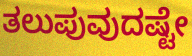
ತಲುಪುವುದಷ್ಟೇ